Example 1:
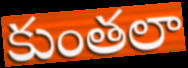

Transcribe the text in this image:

కుంతలా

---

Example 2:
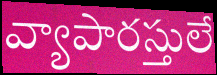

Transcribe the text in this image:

వ్యాపారస్తులే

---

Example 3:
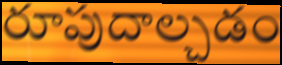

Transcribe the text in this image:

రూపుదాల్చడం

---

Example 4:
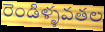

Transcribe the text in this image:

రెండిళ్ళవతల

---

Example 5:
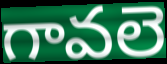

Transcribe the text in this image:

గావలె